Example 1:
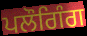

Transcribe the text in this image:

ਪਲੌਗਿੰਗ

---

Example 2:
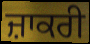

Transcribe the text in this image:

ਜ਼ਾਕਰੀ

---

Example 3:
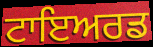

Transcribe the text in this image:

ਟਾਇਅਰਡ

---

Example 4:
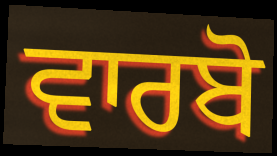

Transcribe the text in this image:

ਵਾਰਬੋ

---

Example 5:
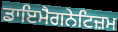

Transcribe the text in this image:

ਡਾਇਮੈਗਨੇਟਿਜ਼ਮ